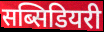
सब्सिडियरी